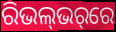
ରିଭଲ୍‌ଭର୍‌ରେ